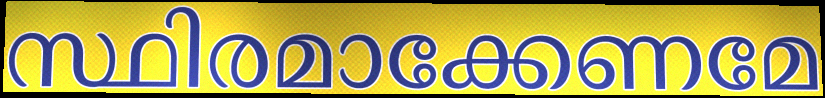
സ്ഥിരമാക്കേണമേ